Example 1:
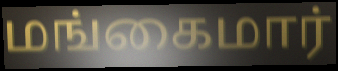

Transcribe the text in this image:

மங்கைமார்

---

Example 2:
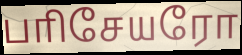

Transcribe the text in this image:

பரிசேயரோ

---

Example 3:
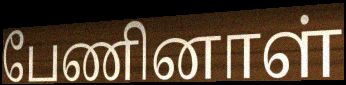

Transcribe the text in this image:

பேணினாள்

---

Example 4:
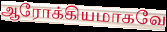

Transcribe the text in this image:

ஆரோக்கியமாகவே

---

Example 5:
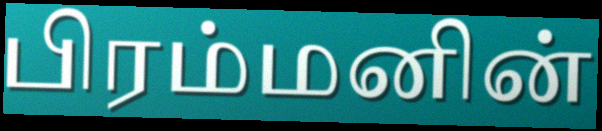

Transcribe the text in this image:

பிரம்மனின்